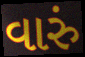
વારું